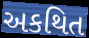
અકથિત